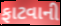
ફાટવાની